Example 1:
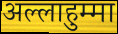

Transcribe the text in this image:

अल्लाहुम्मा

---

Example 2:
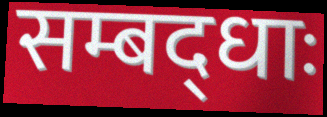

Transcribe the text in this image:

सम्बद्धाः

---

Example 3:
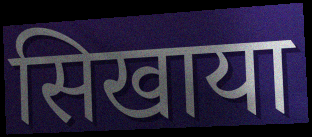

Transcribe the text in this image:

सिखाया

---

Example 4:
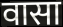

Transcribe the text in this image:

वासा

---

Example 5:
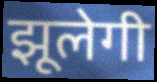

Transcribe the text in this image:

झूलेगी